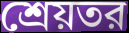
শ্রেয়তর